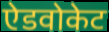
ऐडवोकेट